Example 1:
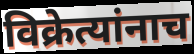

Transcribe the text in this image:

विक्रेत्यांनाच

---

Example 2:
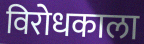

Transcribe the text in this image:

विरोधकाला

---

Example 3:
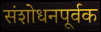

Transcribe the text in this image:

संशोधनपूर्वक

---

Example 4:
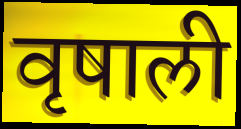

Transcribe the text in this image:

वृषाली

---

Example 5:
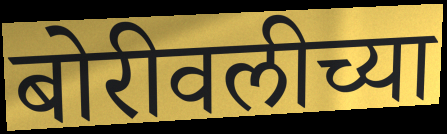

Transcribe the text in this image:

बोरीवलीच्या